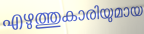
എഴുത്തുകാരിയുമായ